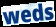
weds